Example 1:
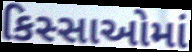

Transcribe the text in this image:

કિસ્સાઓમાં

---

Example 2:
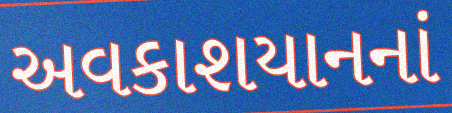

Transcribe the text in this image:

અવકાશયાનનાં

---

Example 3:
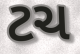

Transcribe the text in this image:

ટચ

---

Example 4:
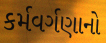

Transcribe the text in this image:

કર્મવર્ગણાનો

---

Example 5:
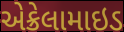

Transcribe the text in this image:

એક્રેલામાઇડ